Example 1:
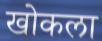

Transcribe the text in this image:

खोकला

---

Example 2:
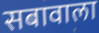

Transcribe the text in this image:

सबावाला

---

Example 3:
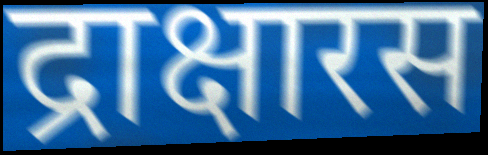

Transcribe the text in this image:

द्राक्षारस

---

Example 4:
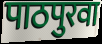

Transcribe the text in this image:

पाठपुरवा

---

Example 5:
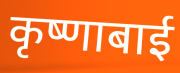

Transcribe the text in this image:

कृष्णाबाई